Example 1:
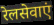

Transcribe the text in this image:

रेलसेवाएं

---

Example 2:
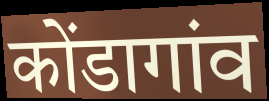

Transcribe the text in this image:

कोंडागांव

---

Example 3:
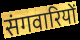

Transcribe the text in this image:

संगवारियों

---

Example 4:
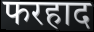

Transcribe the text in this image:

फरहाद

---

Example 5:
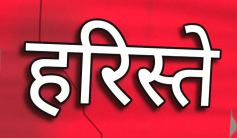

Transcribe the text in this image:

हरिस्ते